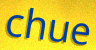
chue